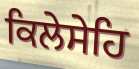
ਕਿਲੇਸੇਹਿ